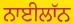
ਨਾਈਲਾੱਨ